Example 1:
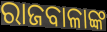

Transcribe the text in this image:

ରାଜବାଳାଙ୍କ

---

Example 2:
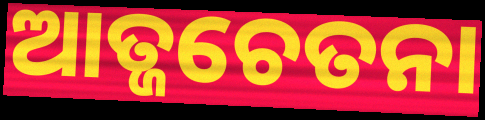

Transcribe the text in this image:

ଆତ୍ଜଚେତନା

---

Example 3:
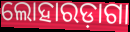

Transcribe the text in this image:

ଲୋହାରଡ଼ାଗା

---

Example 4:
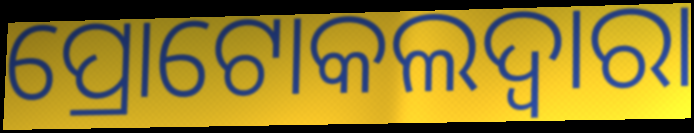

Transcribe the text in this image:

ପ୍ରୋଟୋକଲଦ୍ୱାରା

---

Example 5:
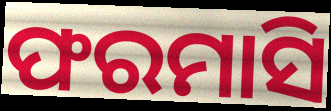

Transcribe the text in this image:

ଫରମାସି